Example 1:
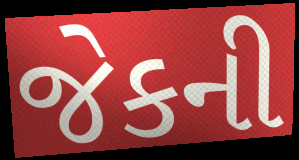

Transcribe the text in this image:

જેકની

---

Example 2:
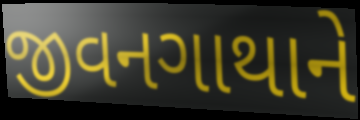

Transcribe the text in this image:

જીવનગાથાને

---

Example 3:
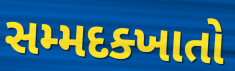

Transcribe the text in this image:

સમ્મદક્ખાતો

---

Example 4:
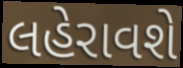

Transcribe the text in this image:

લહેરાવશે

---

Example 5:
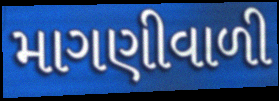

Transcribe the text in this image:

માગણીવાળી